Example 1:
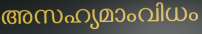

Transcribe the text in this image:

അസഹ്യമാംവിധം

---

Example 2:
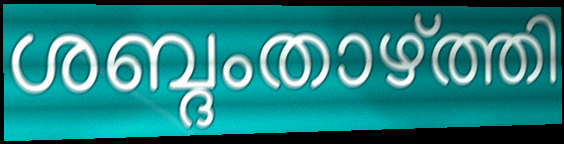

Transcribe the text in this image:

ശബ്ദംതാഴ്ത്തി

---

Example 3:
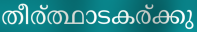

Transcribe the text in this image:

തീര്ത്ഥാടകര്ക്കു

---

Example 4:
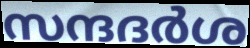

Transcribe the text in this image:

സന്ദദർശ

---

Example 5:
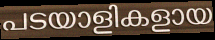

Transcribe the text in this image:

പടയാളികളായ